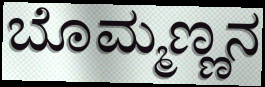
ಬೊಮ್ಮಣ್ಣನ